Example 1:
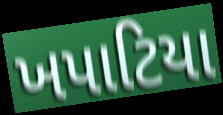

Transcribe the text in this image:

ખપાટિયા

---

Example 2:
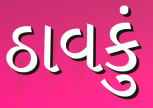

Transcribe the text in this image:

ઠાવકું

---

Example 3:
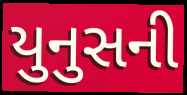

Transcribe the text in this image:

યુનુસની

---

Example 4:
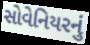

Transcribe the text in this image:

સોવેનિયરનું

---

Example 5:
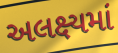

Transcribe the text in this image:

અલક્ષ્યમાં